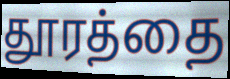
தூரத்தை